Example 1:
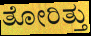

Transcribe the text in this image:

ತೋರಿತ್ತು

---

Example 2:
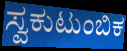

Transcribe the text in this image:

ಸ್ವಕುಟುಂಬಿಕ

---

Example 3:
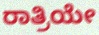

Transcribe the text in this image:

ರಾತ್ರಿಯೇ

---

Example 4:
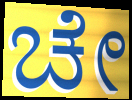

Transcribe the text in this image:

ಚೇ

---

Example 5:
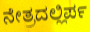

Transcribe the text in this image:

ನೇತ್ರದಲ್ಲಿರ್ಪ